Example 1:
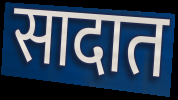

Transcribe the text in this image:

सादात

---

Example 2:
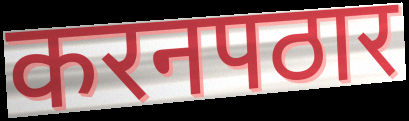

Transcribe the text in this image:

करनपठार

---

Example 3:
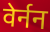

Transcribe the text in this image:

वेर्नन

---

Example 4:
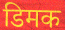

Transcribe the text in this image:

डिमक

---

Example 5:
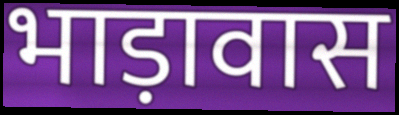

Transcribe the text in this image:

भाड़ावास